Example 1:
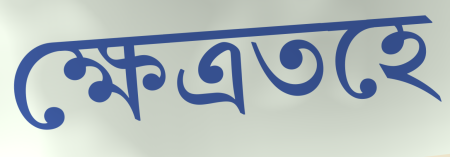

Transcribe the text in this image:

ক্ষেত্ৰতহে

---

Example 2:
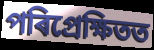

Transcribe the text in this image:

পৰিপ্ৰেক্ষিতত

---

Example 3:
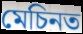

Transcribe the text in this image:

মেচিনত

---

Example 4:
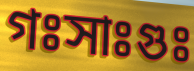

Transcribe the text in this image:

গঃসাঃগুঃ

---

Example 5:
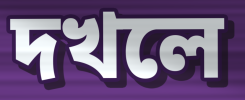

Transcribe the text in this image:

দখলে